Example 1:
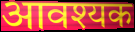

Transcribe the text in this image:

आवश्‍यक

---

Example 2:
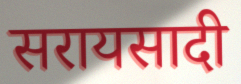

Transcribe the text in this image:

सरायसादी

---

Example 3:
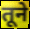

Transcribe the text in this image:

तूने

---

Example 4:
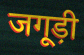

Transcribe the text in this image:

जगूड़ी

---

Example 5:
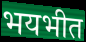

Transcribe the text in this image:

भयभीत